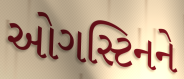
ઓગસ્ટિનને